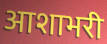
आशाभरी